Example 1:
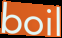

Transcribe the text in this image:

boil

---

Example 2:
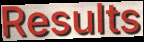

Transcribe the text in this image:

Results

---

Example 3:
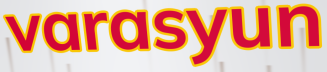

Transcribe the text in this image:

varasyun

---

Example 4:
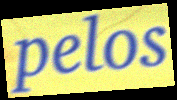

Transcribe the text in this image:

pelos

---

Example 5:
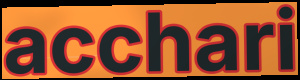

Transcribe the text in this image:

acchari